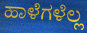
ಹಾಳೆಗಳೆಲ್ಲ